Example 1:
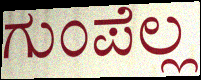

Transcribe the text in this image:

ಗುಂಪೆಲ್ಲ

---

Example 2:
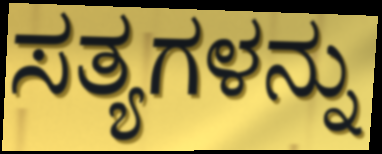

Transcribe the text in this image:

ಸತ್ಯಗಳನ್ನು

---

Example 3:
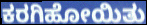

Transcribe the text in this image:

ಕರಗಿಹೋಯಿತು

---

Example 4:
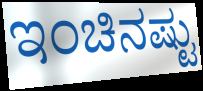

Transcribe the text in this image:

ಇಂಚಿನಷ್ಟು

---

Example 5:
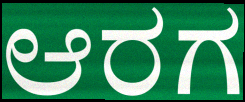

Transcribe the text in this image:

ಆರಗ